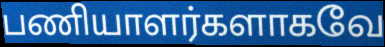
பணியாளர்களாகவே